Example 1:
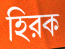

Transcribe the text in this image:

হিরক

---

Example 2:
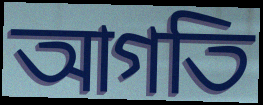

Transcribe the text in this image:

আগতি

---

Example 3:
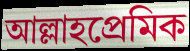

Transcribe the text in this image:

আল্লাহপ্রেমিক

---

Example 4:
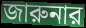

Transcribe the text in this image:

জারুনার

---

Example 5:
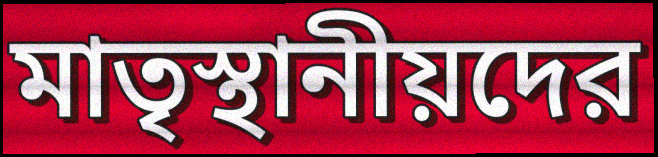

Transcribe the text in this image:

মাতৃস্থানীয়দের